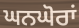
ਘਨਘੋਰਾਂ